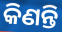
କିଣନ୍ତି